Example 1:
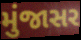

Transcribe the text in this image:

મુંજાસર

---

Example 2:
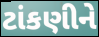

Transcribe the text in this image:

ટાંકણીને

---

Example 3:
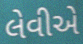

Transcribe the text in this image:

લેવીએ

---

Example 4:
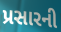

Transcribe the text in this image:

પ્રસારની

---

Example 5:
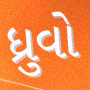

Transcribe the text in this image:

ધ્રુવો